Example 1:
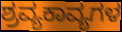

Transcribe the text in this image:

ಶ್ರವ್ಯಕಾವ್ಯಗಳ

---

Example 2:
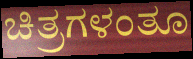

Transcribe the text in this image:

ಚಿತ್ರಗಳಂತೂ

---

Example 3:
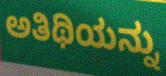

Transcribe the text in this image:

ಅತಿಥಿಯನ್ನು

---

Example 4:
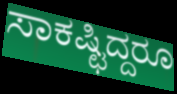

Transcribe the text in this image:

ಸಾಕಷ್ಟಿದ್ದರೂ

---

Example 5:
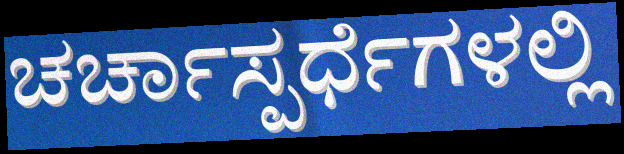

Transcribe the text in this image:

ಚರ್ಚಾಸ್ಪರ್ಧೆಗಳಲ್ಲಿ